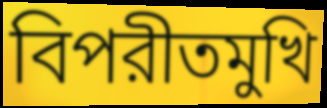
বিপরীতমুখি